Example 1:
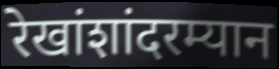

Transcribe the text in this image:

रेखांशांदरम्यान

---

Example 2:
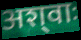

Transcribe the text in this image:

अश्वाः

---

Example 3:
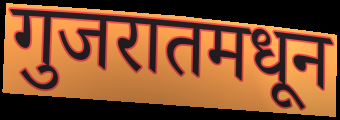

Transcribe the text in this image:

गुजरातमधून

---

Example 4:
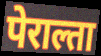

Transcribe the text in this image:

पेराल्ता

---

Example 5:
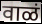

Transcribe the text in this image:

वाळं